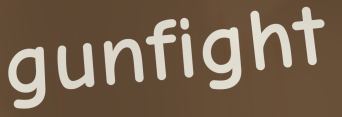
gunfight